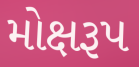
મોક્ષરૂપ